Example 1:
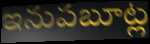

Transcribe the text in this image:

ఇనుపబూట్ల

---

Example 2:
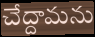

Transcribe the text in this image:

చేద్దామను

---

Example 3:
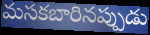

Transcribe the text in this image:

మసకబారినప్పుడు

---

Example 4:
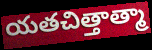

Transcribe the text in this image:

యతచిత్తాత్మా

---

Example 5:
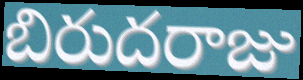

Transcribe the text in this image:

బిరుదరాజు